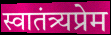
स्वातंत्र्यप्रेम